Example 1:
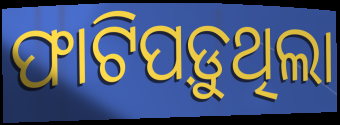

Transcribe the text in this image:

ଫାଟିପଡ଼ୁଥିଲା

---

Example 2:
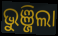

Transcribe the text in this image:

ଭୁଞ୍ଜିଲା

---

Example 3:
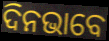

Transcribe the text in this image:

ଦିନଭାବେ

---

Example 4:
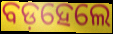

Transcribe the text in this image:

ବଡ଼ହେଲେ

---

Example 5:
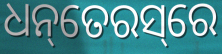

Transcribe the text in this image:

ଧନ୍‌ତେରସ୍‌ରେ